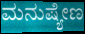
ಮನುಷ್ಯೇಣ